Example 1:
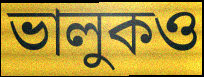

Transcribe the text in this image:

ভালুকও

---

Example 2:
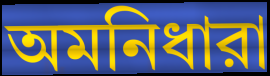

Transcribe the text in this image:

অমনিধারা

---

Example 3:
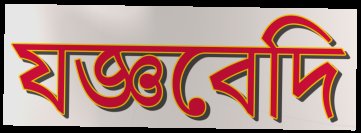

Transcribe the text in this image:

যজ্ঞবেদি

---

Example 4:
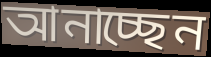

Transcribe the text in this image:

আনাচ্ছেন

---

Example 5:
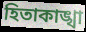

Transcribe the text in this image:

হিতাকাঙ্খা